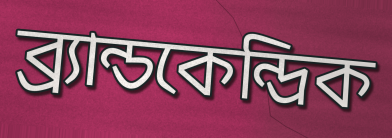
ব্র্যান্ডকেন্দ্রিক